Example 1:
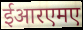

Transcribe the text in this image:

ईआरएमए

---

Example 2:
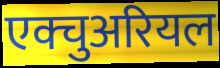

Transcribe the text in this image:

एक्चुअरियल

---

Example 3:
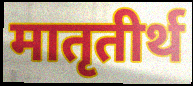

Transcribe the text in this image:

मातृतीर्थ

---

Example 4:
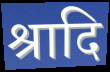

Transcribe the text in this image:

श्रादि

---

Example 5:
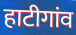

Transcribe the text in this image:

हाटीगांव